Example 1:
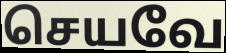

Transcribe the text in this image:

செயவே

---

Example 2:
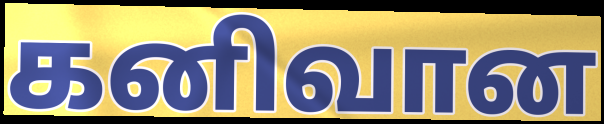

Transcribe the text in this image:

கனிவான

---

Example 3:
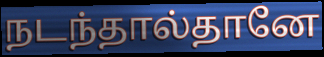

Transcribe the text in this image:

நடந்தால்தானே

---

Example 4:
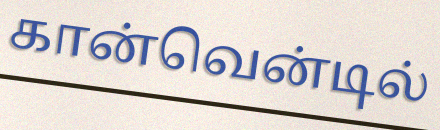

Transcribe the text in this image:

கான்வென்டில்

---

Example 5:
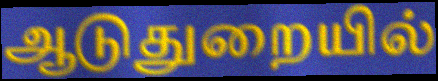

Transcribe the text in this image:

ஆடுதுறையில்